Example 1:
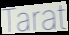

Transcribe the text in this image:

Tarat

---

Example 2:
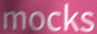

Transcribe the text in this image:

mocks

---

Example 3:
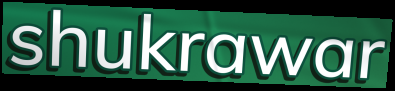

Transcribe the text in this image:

shukrawar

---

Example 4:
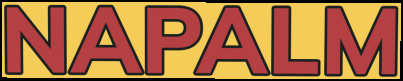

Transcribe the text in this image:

NAPALM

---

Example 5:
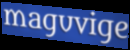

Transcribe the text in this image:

maguvige